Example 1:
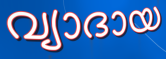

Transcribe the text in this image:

വ്യാദായ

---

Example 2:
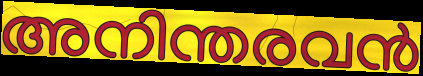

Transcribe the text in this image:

അനിന്തരവൻ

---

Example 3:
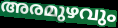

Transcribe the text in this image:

അരമുഴവും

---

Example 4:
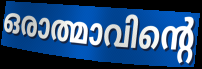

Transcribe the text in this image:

ഒരാത്മാവിന്റെ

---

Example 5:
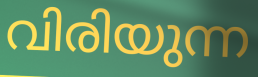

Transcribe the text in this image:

വിരിയുന്ന